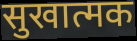
सुखात्मक